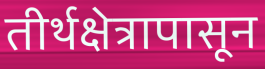
तीर्थक्षेत्रापासून